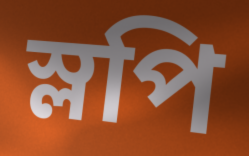
স্লপি